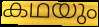
കഥയും